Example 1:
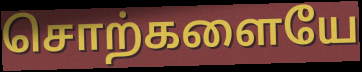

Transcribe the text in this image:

சொற்களையே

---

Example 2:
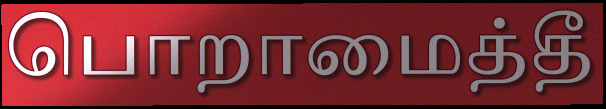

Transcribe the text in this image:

பொறாமைத்தீ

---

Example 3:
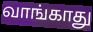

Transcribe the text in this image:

வாங்காது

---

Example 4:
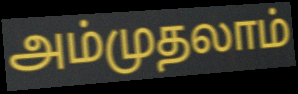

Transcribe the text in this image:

அம்முதலாம்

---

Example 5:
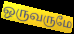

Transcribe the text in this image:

ஒருவருமே